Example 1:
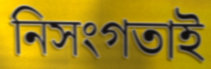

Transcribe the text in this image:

নিসংগতাই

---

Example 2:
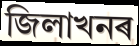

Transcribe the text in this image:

জিলাখনৰ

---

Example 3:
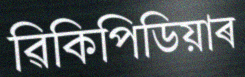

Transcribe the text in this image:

ৱিকিপিডিয়াৰ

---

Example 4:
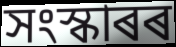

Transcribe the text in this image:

সংস্কাৰৰ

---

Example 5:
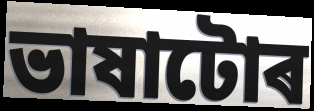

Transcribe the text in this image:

ভাষাটোৰ